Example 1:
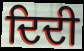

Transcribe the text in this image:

ਦਿਦੀ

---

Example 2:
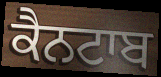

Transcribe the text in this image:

ਕੈਨਟਾਬ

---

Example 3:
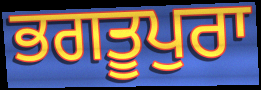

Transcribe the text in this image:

ਭਗਤੂਪੁਰਾ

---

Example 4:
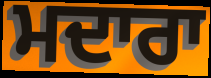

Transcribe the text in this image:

ਮਦਾਰਾ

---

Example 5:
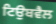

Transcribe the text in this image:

ਟਿਉਬਵੈਲ